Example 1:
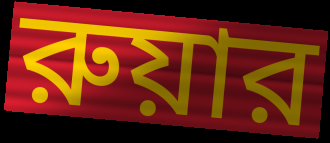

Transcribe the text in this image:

রুয়ার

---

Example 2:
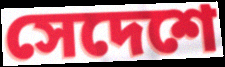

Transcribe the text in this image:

সেদেশে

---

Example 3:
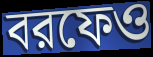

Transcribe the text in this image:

বরফেও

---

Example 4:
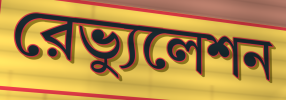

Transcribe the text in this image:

রেভ্যুলেশন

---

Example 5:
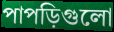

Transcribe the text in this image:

পাপড়িগুলো